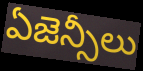
ఏజెన్సీలు